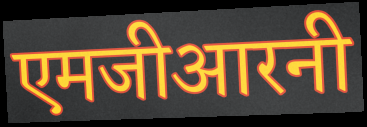
एमजीआरनी